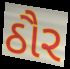
ઠૌર